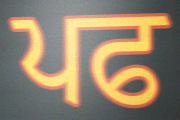
ਪਫ